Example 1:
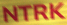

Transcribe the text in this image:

NTRK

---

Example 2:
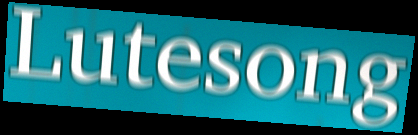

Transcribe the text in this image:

Lutesong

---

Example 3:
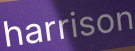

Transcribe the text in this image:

harrison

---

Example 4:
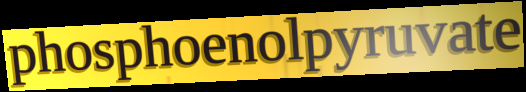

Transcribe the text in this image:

phosphoenolpyruvate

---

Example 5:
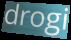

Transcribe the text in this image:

drogi